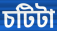
চটিটা